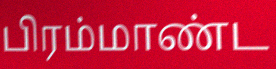
பிரம்மாண்ட